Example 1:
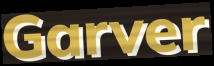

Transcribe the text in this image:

Garver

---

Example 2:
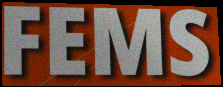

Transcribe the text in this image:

FEMS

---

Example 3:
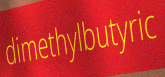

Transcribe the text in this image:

dimethylbutyric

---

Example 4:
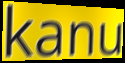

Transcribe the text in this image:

kanu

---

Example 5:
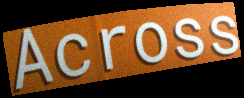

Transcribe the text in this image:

Across